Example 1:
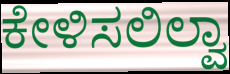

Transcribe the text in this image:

ಕೇಳಿಸಲಿಲ್ವಾ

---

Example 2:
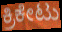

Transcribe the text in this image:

ಕ್ರಿಕೇಟು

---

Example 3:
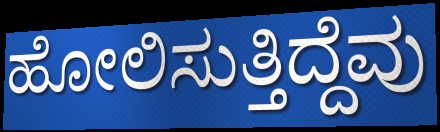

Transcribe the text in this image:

ಹೋಲಿಸುತ್ತಿದ್ದೆವು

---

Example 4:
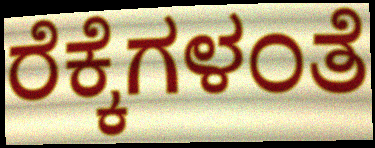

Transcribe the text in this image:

ರೆಕ್ಕೆಗಳಂತೆ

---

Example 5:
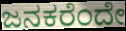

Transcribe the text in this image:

ಜನಕರೆಂದೇ